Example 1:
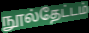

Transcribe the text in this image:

நூல்தேட்டம்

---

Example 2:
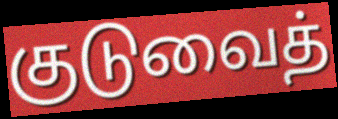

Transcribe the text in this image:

குடுவைத்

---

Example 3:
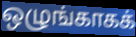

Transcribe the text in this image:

ஒழுங்காகக்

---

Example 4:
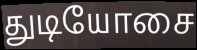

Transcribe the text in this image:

துடியோசை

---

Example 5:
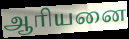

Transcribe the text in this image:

ஆரியனை